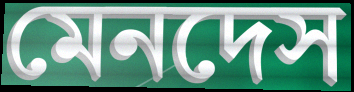
মেনদেস